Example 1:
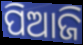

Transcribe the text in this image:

ପିଆଜି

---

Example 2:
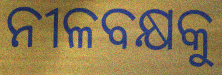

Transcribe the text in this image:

ନୀଳବକ୍ଷକୁ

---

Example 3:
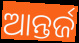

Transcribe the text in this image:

ଆନ୍ତର୍ଜ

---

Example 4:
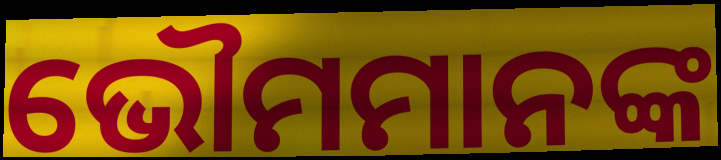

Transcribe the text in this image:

ଭୌମମାନଙ୍କ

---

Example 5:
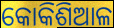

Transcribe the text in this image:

କୋକିଶିଆଳ